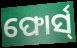
ଫୋର୍ସ୍